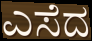
ಎಸೆದ